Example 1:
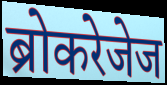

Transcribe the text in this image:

ब्रोकरेजेज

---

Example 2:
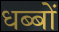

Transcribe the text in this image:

धब्बों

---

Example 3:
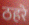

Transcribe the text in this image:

ठहरे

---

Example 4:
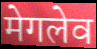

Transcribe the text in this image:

मेगलेव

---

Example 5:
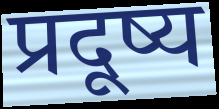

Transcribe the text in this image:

प्रदूष्य